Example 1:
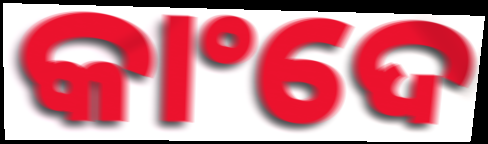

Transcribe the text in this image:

କାଂଦେ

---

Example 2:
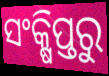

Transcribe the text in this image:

ସଂକ୍ଷିପ୍ତରୁ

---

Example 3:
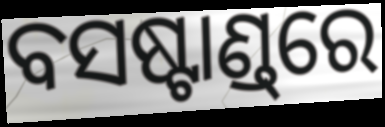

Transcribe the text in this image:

ବସଷ୍ଟାଣ୍ଡ୍‌ରେ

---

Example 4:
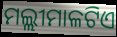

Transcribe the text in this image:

ମଲ୍ଲୀମାଳଟିଏ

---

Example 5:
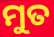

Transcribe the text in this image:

ମୁତ